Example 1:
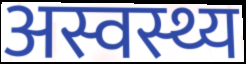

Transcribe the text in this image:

अस्वस्थ्य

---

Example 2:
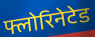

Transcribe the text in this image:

फ्लोरिनेटेड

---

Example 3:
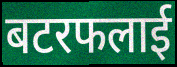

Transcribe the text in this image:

बटरफलाई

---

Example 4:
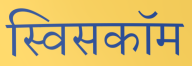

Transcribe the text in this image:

स्विसकॉम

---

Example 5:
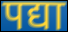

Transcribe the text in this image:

पद्या